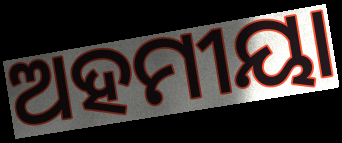
ଅହମୀୟା